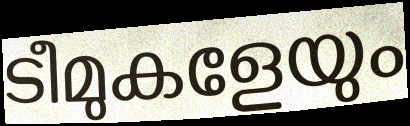
ടീമുകളേയും